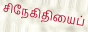
சிநேகிதியைப்